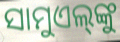
ସାମୁଏଲ୍‌ଙ୍କୁ